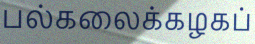
பல்கலைக்கழகப்